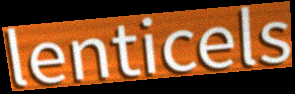
lenticels